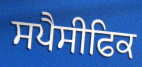
ਸਪੈਸੀਫਿਕ